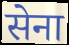
सेना